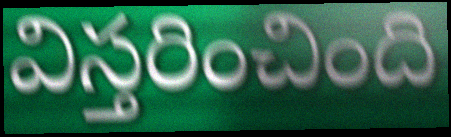
విస్తరించింది